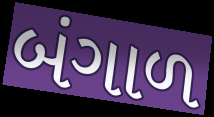
બંગાળ